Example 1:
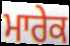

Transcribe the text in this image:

ਮਾਰੇਕ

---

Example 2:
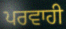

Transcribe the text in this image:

ਪਰਵਾਹੀ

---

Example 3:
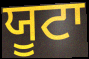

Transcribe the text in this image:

ਯੂਟਾ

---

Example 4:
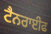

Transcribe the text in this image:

ਟੈਨਰਾਈਫ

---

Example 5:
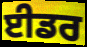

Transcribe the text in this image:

ਈਡਰ